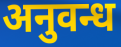
अनुवन्ध